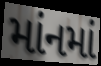
માંનમાં